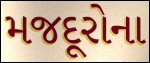
મજદૂરોના